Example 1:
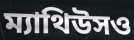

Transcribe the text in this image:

ম্যাথিউসও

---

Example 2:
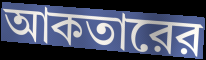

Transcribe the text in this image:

আকতারের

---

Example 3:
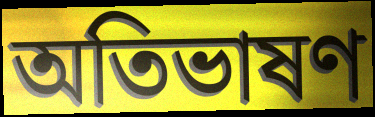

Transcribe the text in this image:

অতিভাষণ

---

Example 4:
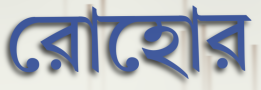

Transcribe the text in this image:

রোহোর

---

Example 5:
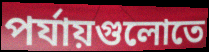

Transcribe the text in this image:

পর্যায়গুলোতে